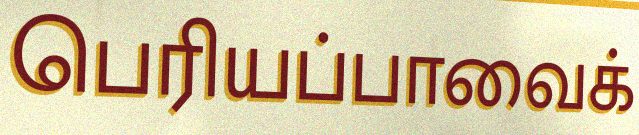
பெரியப்பாவைக்